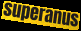
superanus